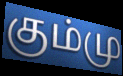
கும்மு